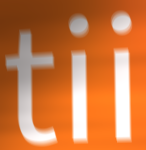
tii